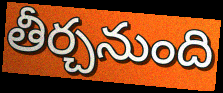
తీర్చనుంది